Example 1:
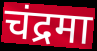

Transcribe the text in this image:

चंद्रमा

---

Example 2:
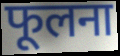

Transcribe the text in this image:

फूलना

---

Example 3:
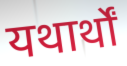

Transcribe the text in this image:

यथार्थों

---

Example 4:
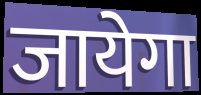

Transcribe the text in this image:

जायेगा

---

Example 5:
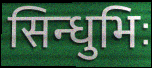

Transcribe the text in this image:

सिन्धुभिः